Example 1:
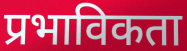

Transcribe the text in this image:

प्रभाविकता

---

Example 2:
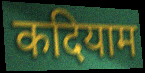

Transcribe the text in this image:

कदियाम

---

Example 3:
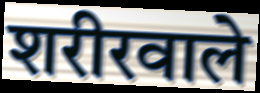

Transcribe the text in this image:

शरीरवाले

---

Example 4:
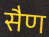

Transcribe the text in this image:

सैण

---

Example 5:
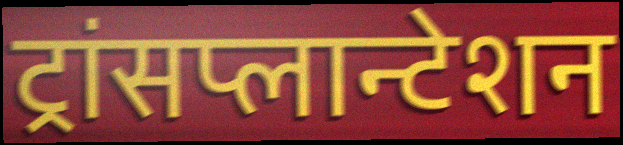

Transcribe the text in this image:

ट्रांसप्लान्टेशन